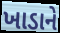
ખાડાને